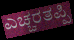
ಎಚ್ಚರತಪ್ಪಿ